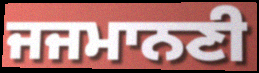
ਜਜਮਾਨਣੀ